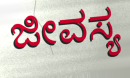
ಜೀವಸ್ಯ